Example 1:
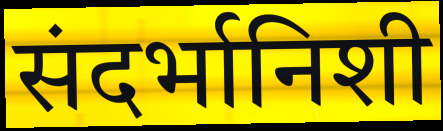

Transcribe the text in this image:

संदर्भानिशी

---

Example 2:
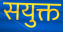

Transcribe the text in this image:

सयुक्त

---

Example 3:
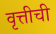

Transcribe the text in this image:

वृत्तीची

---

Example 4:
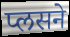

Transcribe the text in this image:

प्लसने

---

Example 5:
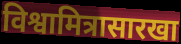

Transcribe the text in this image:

विश्वामित्रासारखा